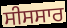
ਸੀਸਸਾਰ